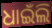
ଧାଇଁଲି